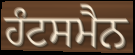
ਹੰਟਸਮੈਨ